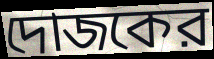
দোজকের